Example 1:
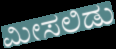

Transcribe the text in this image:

ಮೀಸಲಿಡು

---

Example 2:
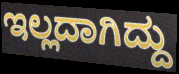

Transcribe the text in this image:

ಇಲ್ಲದಾಗಿದ್ದು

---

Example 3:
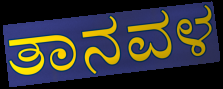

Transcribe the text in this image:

ತಾನವಳ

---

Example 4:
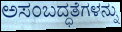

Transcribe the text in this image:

ಅಸಂಬದ್ಧತೆಗಳನ್ನು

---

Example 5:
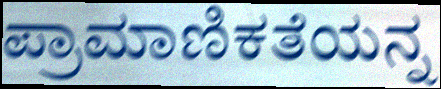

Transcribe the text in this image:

ಪ್ರಾಮಾಣಿಕತೆಯನ್ನ